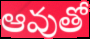
ఆవుతో